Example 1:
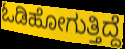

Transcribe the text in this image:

ಓಡಿಹೋಗುತ್ತಿದ್ದೆ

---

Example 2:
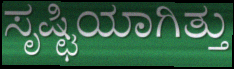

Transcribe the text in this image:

ಸೃಷ್ಟಿಯಾಗಿತ್ತು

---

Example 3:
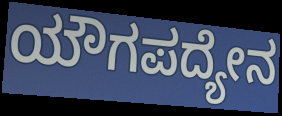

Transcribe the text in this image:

ಯೌಗಪದ್ಯೇನ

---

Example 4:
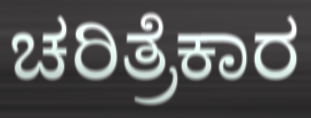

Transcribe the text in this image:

ಚರಿತ್ರೆಕಾರ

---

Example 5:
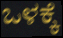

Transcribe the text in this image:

ಒಳಕ್ಕೆ